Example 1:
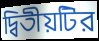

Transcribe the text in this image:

দ্বিতীয়টির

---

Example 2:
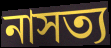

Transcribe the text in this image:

নাসত্য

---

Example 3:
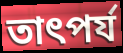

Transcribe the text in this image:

তাৎপর্য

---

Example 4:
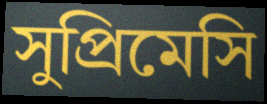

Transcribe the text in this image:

সুপ্রিমেসি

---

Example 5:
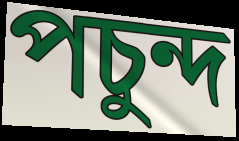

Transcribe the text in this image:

পচুন্দ